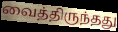
வைத்திருந்தது